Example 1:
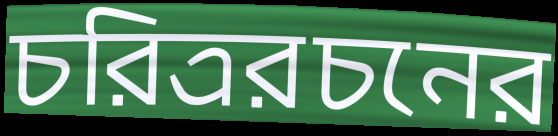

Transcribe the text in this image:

চরিত্ররচনের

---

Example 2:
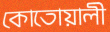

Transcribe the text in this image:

কোতোয়ালী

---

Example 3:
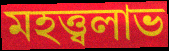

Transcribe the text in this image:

মহত্ত্বলাভ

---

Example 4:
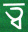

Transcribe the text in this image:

ত্ব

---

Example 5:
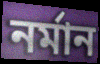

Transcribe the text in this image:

নর্মান